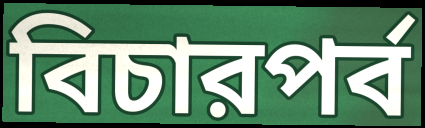
বিচারপর্ব